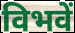
विभवें